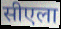
सीएला